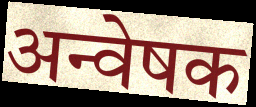
अन्वेषक